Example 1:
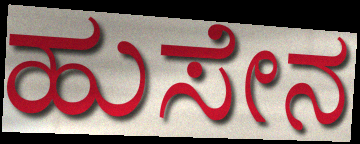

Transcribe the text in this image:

ಹುಸೇನ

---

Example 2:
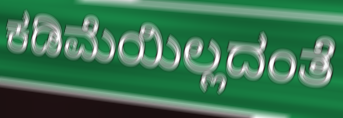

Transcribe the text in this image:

ಕಡಿಮೆಯಿಲ್ಲದಂತೆ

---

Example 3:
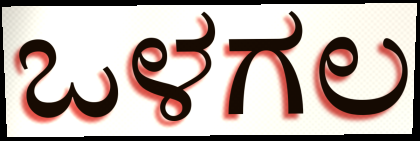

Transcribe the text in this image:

ಒಳಗಲ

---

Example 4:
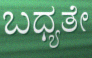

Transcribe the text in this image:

ಬಧ್ಯತೇ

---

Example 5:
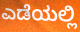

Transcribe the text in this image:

ಎಡೆಯಲ್ಲಿ